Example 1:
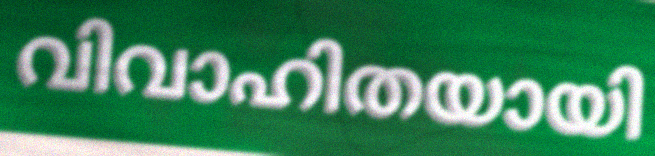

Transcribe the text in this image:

വിവാഹിതയായി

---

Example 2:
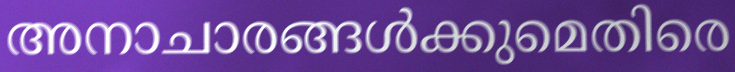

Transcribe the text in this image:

അനാചാരങ്ങൾക്കുമെതിരെ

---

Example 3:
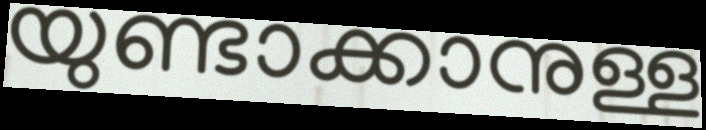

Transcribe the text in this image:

യുണ്ടാക്കാനുള്ള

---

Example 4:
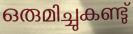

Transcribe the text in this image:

ഒരുമിച്ചുകണ്ടു്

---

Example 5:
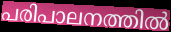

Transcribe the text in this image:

പരിപാലനത്തിൽ